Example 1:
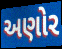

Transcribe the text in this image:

અણોર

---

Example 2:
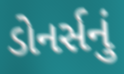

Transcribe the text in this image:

ડોનર્સનું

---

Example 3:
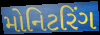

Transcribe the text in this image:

મોનિટરિંગ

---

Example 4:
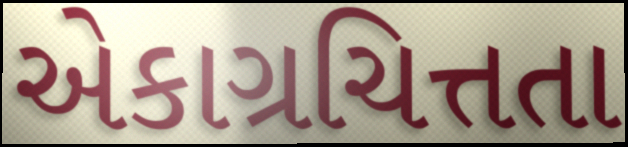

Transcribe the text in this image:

એકાગ્રચિત્તતા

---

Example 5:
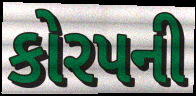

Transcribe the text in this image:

કોરપની